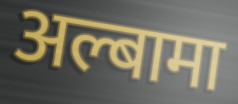
अल्बामा